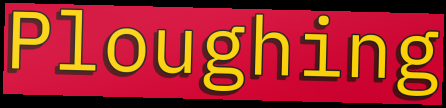
Ploughing